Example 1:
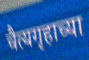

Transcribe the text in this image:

चैत्यगृहाच्या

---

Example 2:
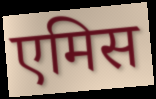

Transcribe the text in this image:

एमिस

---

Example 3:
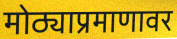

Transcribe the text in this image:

मोठ्याप्रमाणावर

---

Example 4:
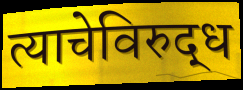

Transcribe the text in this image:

त्याचेविरुद्ध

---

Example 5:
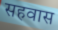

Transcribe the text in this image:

सहवास